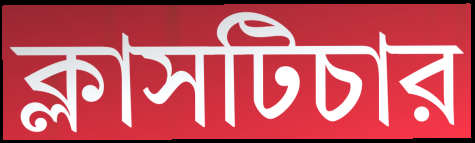
ক্লাসটিচার